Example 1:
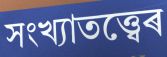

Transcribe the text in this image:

সংখ্যাতত্ত্বেৰ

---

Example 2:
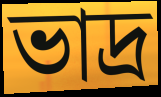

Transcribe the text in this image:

ভাদ্ৰ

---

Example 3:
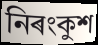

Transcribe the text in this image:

নিৰংকুশ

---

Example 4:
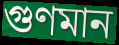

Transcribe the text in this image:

গুণমান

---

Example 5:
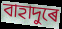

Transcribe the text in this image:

বাহাদুৰে